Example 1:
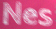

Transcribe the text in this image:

Nes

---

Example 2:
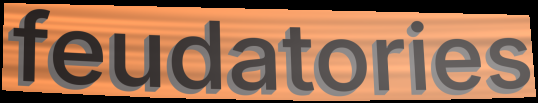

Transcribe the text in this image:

feudatories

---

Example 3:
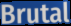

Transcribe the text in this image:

Brutal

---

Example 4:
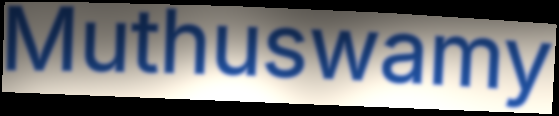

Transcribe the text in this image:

Muthuswamy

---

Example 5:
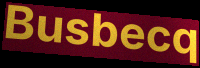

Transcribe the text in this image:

Busbecq